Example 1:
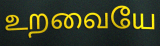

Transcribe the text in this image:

உறவையே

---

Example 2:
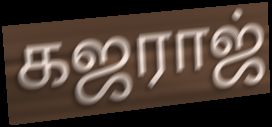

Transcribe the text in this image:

கஜராஜ்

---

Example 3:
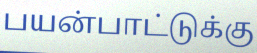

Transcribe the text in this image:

பயன்பாட்டுக்கு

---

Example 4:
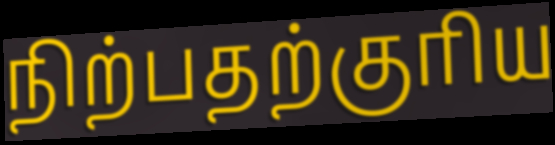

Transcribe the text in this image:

நிற்பதற்குரிய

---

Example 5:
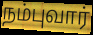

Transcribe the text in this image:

நம்புவார்